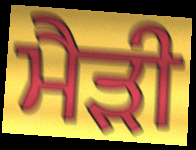
ਮੈੜੀ